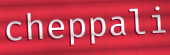
cheppali